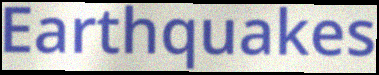
Earthquakes